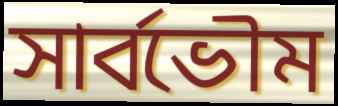
সার্বভৌম